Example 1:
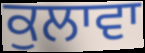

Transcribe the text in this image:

ਕੁਲਾਵਾ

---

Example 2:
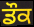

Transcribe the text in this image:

ਡੌਕ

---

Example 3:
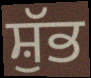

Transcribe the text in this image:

ਸ਼ੁੱਭ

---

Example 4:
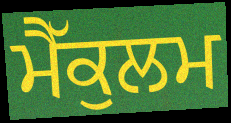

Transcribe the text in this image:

ਮੈੱਕੁਲਮ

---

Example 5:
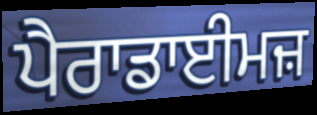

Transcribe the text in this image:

ਪੈਰਾਡਾਈਮਜ਼